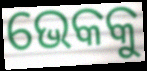
ଭେକକୁ